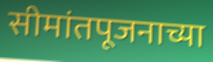
सीमांतपूजनाच्या